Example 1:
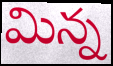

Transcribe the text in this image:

మిన్న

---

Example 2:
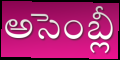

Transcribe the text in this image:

అసెంబ్లీ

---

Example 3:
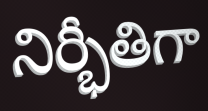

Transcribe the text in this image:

నిర్భీతిగా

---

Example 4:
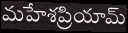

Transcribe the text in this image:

మహేశప్రియామ్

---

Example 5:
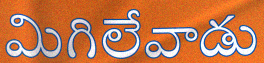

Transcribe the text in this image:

మిగిలేవాడు